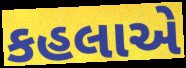
કહલાએ